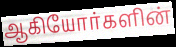
ஆகியோர்களின்